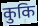
कुकि